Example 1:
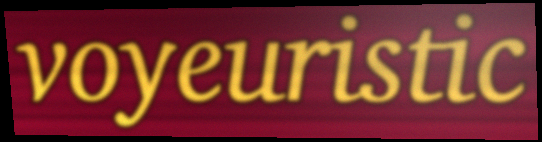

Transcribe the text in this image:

voyeuristic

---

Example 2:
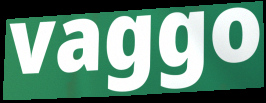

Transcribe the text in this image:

vaggo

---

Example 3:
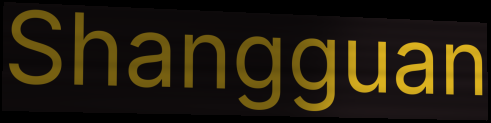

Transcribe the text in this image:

Shangguan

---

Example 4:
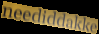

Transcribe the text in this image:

neediddakke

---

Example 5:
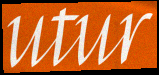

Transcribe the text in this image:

utur